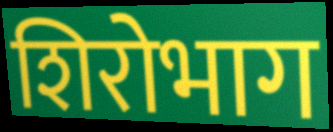
शिरोभाग